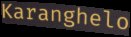
Karanghelo